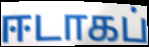
ஈடாகப்